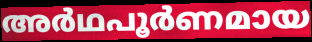
അർഥപൂർണമായ